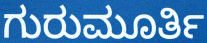
ಗುರುಮೂರ್ತಿ